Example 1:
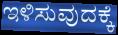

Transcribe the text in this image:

ಇಳಿಸುವುದಕ್ಕೆ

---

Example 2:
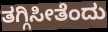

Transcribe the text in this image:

ತಗ್ಗಿಸೀತೆಂದು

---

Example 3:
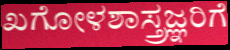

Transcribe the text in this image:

ಖಗೋಳಶಾಸ್ತ್ರಜ್ಞರಿಗೆ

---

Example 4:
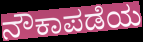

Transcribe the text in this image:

ನೌಕಾಪಡೆಯ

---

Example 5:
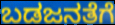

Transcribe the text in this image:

ಬಡಜನತೆಗೆ